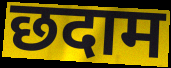
छदाम